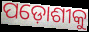
ପଡ଼ୋଶୀକୁ